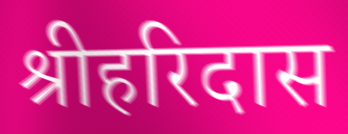
श्रीहरिदास